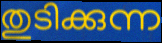
തുടിക്കുന്ന